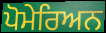
ਪੋਮੇਰਿਅਨ